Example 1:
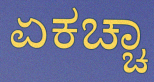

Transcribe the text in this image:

ಏಕಚ್ಚಾ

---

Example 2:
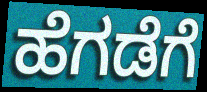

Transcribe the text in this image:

ಹೆಗಡೆಗೆ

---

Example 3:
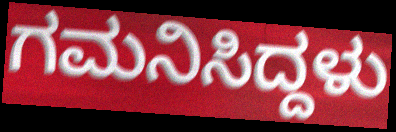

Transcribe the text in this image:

ಗಮನಿಸಿದ್ದಳು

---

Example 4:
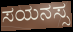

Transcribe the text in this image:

ಸಯನಸ್ಸ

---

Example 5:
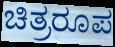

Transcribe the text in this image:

ಚಿತ್ರರೂಪ